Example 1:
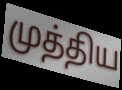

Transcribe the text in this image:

முத்திய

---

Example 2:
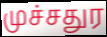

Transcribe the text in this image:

முச்சதுர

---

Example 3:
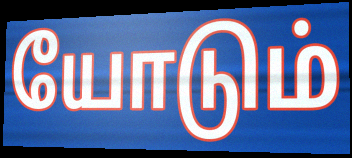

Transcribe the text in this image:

யோடும்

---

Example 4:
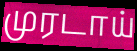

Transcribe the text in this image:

முரடாய்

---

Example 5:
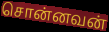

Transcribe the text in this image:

சொன்னவன்